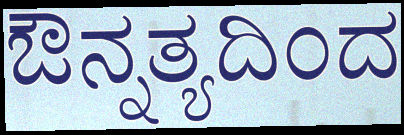
ಔನ್ನತ್ಯದಿಂದ